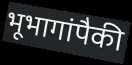
भूभागांपैकी